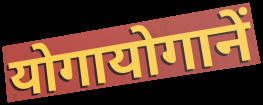
योगायोगानें